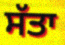
ਸੱਤਾ